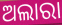
ଅଲାରା